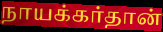
நாயக்கர்தான்